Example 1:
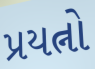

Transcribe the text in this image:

પ્રયત્નો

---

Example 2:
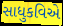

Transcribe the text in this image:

સાધુકવિએ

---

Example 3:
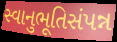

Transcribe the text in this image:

સ્વાનુભૂતિસંપન્ન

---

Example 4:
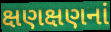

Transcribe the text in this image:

ક્ષણક્ષણનાં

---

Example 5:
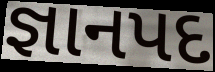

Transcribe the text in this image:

જ્ઞાનપદ